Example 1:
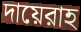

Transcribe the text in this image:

দায়েরাহ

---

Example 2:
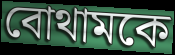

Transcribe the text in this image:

বোথামকে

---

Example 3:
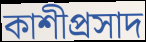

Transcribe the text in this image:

কাশীপ্রসাদ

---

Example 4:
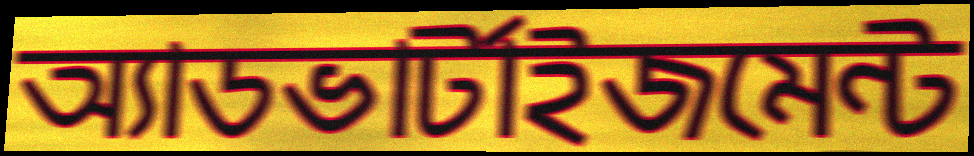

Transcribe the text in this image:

অ্যাডভার্টাইজমেন্ট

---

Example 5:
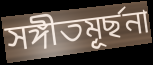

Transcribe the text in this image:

সঙ্গীতমূর্ছনা